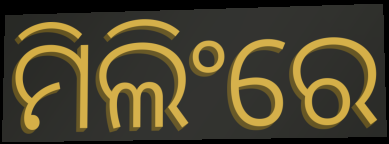
ମିଲିଂରେ